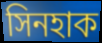
সিনহাক